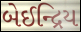
બેઈન્દ્રિય